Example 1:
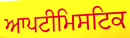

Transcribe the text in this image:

ਆਪਟੀਮਿਸਟਿਕ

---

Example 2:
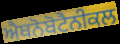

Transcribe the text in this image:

ਐਥਨੋਬੋਟੈਨੀਕਲ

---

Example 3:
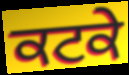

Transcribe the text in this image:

ਕਟਕੇ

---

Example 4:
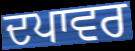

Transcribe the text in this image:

ਦਪਾਵਰ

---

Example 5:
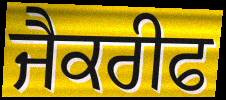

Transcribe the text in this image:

ਜੈਕਰੀਫ